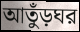
আতুঁড়ঘর